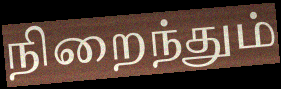
நிறைந்தும்